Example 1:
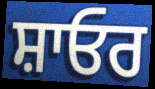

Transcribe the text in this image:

ਸ਼ਾਓਰ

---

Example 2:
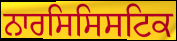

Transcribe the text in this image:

ਨਾਰਸਿਸਿਸਟਿਕ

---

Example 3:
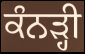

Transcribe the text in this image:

ਕੰਨੜ੍ਹੀ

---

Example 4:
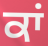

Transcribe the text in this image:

ਕਾਂ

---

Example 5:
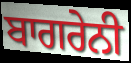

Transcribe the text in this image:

ਬਾਗਰੇਨੀ